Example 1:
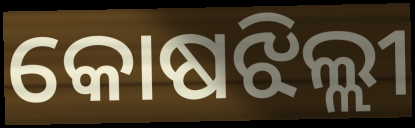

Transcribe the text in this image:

କୋଷଝିଲ୍ଲୀ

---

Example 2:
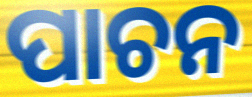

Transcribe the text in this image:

ପାଚନ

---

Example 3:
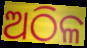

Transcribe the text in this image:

ଅଠିଳ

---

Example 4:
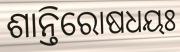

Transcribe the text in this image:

ଶାନ୍ତିରୋଷଧୟଃ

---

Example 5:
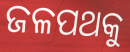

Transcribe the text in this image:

ଜଳପଥକୁ